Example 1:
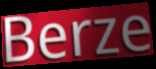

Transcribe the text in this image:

Berze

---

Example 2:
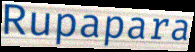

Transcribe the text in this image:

Rupapara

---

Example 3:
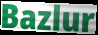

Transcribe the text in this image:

Bazlur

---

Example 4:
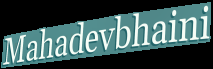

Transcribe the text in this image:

Mahadevbhaini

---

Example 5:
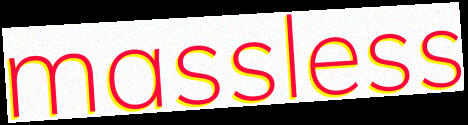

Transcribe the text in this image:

massless